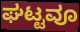
ಘಟ್ಟವೂ